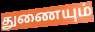
துணையும்